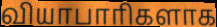
வியாபாரிகளாக